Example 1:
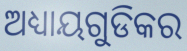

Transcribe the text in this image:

ଅଧ୍ୟାୟଗୁଡିକର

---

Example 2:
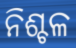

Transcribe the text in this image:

ନିଶ୍ଚଳ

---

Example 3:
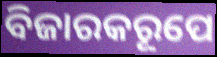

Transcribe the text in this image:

ବିଜାରକରୂପେ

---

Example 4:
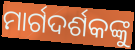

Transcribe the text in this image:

ମାର୍ଗଦର୍ଶକଙ୍କୁ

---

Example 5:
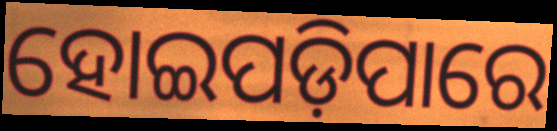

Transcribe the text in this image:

ହୋଇପଡ଼ିପାରେ